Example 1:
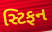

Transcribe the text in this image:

સ્ટિફન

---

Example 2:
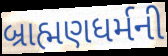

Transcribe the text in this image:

બ્રાહ્મણધર્મની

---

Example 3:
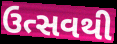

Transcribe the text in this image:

ઉત્સવથી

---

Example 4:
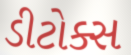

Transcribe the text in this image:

ડીટોક્સ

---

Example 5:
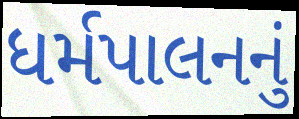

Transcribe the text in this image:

ધર્મપાલનનું